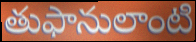
తుఫానులాంటి